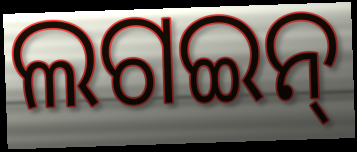
ଲଗଇନ୍